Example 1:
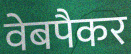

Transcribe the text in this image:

वेबपैकर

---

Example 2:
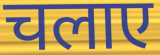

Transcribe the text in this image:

चलाए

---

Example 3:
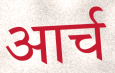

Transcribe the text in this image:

आर्च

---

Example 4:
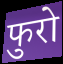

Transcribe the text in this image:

फुरो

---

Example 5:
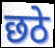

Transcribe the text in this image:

छठे